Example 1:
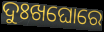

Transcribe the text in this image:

ଦୁଃଖଘୋରେ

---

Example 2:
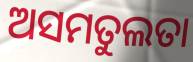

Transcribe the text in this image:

ଅସମତୁଲତା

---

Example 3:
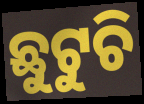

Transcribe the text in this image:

ଛୁଟୁଚି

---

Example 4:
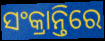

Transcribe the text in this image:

ସଂକ୍ରାନ୍ତିରେ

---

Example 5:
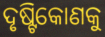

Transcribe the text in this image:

ଦୃଷ୍ଟିକୋଣକୁ